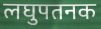
लघुपतनक